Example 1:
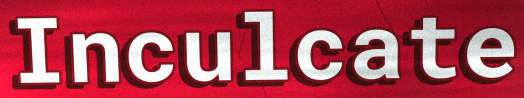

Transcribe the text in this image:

Inculcate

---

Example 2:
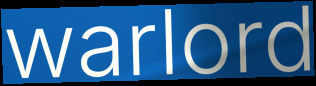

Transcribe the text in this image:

warlord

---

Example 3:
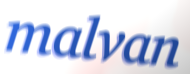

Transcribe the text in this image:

malvan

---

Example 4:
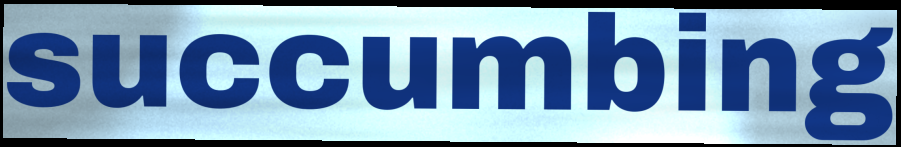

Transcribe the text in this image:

succumbing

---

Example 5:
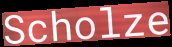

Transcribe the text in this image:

Scholze